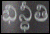
భిన్ధీతి